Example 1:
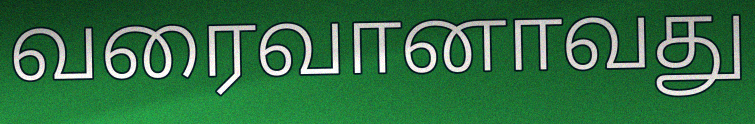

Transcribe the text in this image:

வரைவானாவது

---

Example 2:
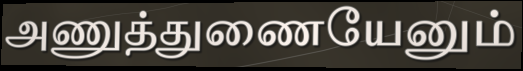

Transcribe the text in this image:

அணுத்துணையேனும்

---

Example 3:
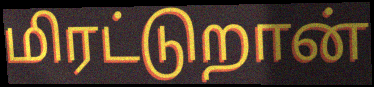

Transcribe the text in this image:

மிரட்டுறான்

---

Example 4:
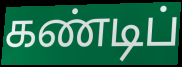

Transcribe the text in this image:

கண்டிப்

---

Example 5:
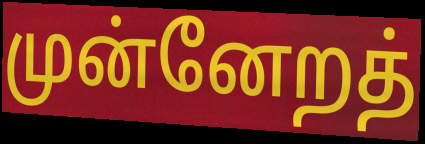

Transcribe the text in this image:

முன்னேறத்